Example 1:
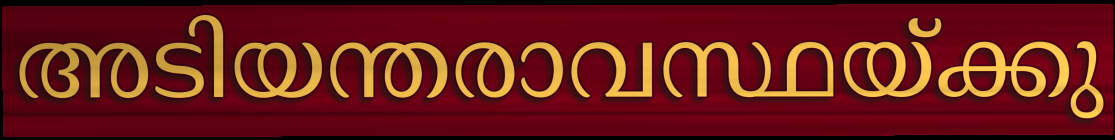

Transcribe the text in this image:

അടിയന്തരാവസ്ഥയ്ക്കു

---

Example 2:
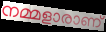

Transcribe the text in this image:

നമ്മളാരാണ്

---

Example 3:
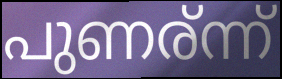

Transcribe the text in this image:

പുണര്ന്ന്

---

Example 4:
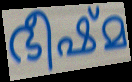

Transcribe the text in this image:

ഭീഷ്മ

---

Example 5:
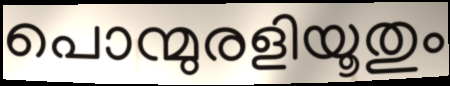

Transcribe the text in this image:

പൊന്മുരളിയൂതും